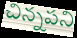
చిన్నపని